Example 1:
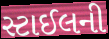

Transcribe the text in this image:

સ્ટાઈલની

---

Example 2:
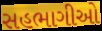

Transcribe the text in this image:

સહભાગીઓ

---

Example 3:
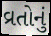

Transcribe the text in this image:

વ્રતોનું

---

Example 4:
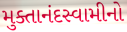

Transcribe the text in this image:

મુક્તાનંદસ્વામીનો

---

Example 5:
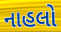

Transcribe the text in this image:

નાહલો